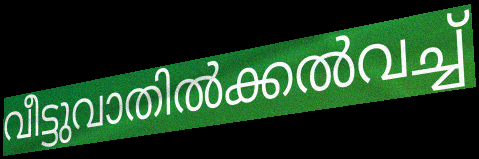
വീട്ടുവാതിൽക്കൽവച്ച്